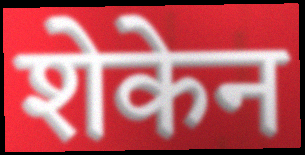
शेकेन